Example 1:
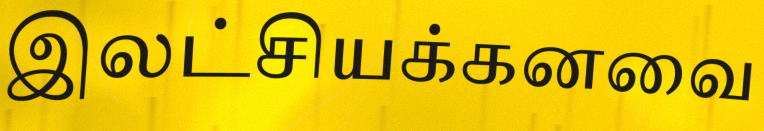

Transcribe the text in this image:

இலட்சியக்கனவை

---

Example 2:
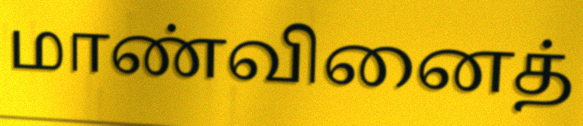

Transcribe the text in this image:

மாண்வினைத்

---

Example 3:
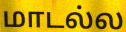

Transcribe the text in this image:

மாடல்ல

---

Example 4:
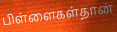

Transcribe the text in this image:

பிள்ளைகள்தான்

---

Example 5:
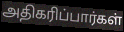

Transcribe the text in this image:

அதிகரிப்பார்கள்